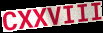
CXXVIII